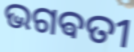
ଭଗଵତୀ